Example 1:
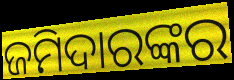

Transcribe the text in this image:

ଜମିଦାରଙ୍କର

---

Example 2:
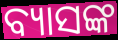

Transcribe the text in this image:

ବ୍ୟାସଙ୍କ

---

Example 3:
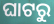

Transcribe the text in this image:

ଘାଟରୁ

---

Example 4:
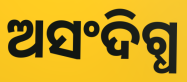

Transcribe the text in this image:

ଅସଂଦିଗ୍ଧ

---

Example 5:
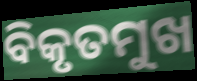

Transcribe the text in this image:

ବିକୃତମୁଖ